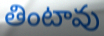
తింటావు